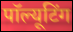
पॉल्यूटिंग